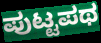
ಪುಟ್ಟಪಥ